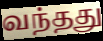
வந்தது